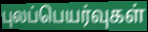
புலப்பெயர்வுகள்